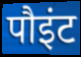
पौइंट